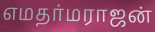
எமதர்மராஜன்